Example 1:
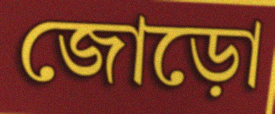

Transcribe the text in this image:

জোড়ো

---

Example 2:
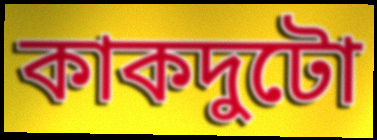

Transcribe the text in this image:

কাকদুটো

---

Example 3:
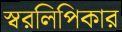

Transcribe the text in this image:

স্বরলিপিকার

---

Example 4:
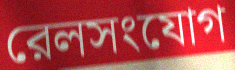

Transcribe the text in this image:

রেলসংযোগ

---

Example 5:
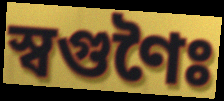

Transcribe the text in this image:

স্বগুণৈঃ